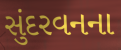
સુંદરવનના